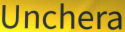
Unchera